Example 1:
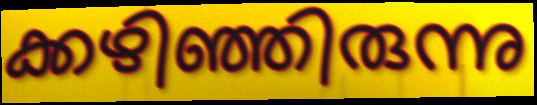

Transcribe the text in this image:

ക്കഴിഞ്ഞിരുന്നു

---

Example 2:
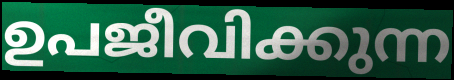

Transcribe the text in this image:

ഉപജീവിക്കുന്ന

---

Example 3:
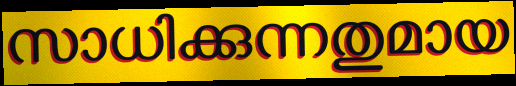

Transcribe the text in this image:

സാധിക്കുന്നതുമായ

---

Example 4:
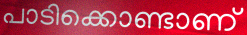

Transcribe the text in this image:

പാടിക്കൊണ്ടാണ്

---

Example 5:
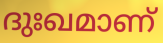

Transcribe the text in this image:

ദുഃഖമാണ്